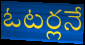
ఓటర్లనే